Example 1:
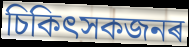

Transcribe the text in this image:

চিকিৎসকজনৰ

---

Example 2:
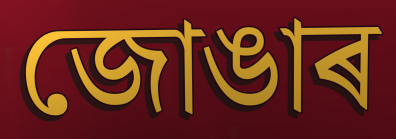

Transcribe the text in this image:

জোঙাৰ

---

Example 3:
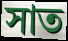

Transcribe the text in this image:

সাত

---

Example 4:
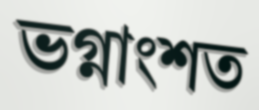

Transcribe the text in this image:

ভগ্নাংশত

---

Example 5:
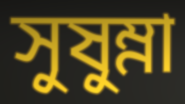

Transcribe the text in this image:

সুষুম্না